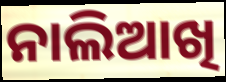
ନାଲିଆଖି